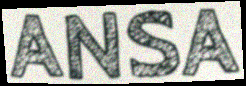
ANSA